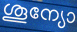
ശൂന്യോ